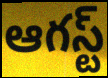
ఆగస్ట్